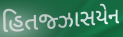
હિતજ્ઝાસયેન